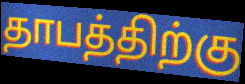
தாபத்திற்கு